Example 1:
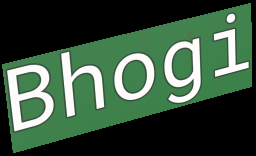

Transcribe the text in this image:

Bhogi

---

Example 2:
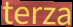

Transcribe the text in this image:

terza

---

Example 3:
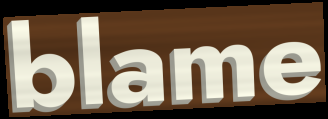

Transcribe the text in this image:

blame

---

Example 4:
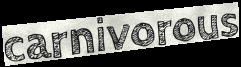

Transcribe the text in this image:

carnivorous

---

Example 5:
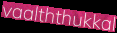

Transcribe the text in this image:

vaalththukkal